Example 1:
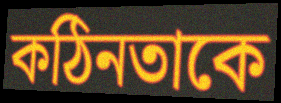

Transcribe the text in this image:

কঠিনতাকে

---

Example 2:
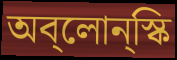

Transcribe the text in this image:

অব্‌লোন্‌স্কি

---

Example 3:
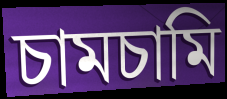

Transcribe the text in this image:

চামচামি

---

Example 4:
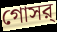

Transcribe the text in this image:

গোসর্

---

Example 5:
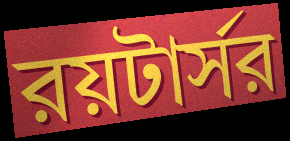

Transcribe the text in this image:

রয়টার্সর